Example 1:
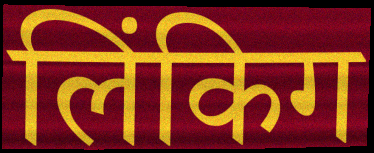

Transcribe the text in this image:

लिंकिग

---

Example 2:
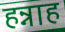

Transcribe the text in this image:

हन्नाह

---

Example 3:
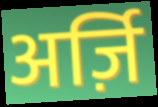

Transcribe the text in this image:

अर्ज़ि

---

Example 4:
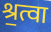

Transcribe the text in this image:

श्र॒त्वा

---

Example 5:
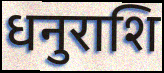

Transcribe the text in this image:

धनुराशि